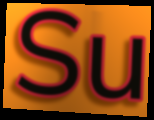
Su